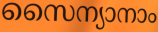
സൈന്യാനാം